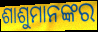
ଶାଶୁମାନଙ୍କର